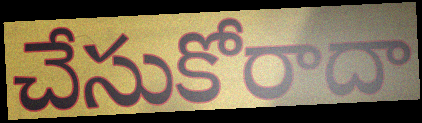
చేసుకోరాదా